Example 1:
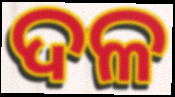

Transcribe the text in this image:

ଦଳ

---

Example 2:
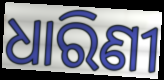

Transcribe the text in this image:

ଧାରିଣୀ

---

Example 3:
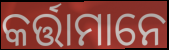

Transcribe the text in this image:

କର୍ତ୍ତାମାନେ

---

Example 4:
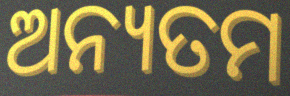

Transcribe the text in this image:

ଅନ୍ୟତମ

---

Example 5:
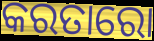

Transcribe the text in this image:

କରତାରୋ